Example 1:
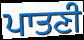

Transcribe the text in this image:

ਪਾਤਣੀ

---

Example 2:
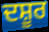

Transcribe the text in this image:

ਦਸ਼ੂਰ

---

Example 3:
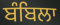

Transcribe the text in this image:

ਬੰਬਿਲਾ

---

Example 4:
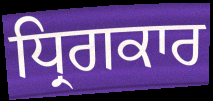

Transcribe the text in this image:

ਧ੍ਰਿਗਕਾਰ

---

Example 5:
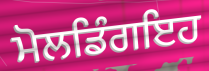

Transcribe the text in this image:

ਮੋਲਡਿੰਗਇਹ